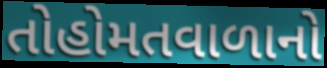
તોહોમતવાળાનો